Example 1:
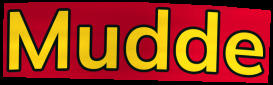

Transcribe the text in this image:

Mudde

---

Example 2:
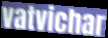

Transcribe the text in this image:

vatvichar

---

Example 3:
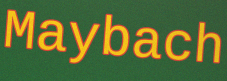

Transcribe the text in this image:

Maybach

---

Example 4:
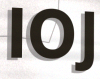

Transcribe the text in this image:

IOJ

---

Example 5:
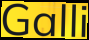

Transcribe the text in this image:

Galli